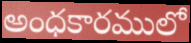
అంధకారములో